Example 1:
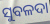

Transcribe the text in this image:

ସୁବଳଦା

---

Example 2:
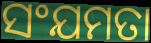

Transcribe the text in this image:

ସଂଯମତା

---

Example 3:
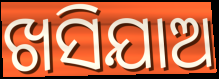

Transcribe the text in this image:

ଖସିଯାଅ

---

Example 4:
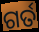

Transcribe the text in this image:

ଗର୍ତ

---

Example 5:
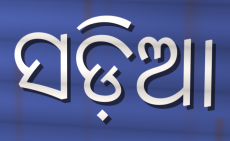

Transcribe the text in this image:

ସଡ଼ିଆ